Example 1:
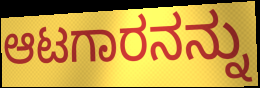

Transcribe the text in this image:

ಆಟಗಾರನನ್ನು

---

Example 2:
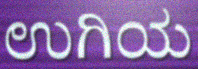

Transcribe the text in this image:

ಉಗಿಯ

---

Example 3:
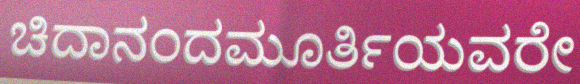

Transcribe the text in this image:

ಚಿದಾನಂದಮೂರ್ತಿಯವರೇ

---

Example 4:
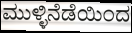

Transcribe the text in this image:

ಮುಳ್ಳಿನೆಡೆಯಿಂದ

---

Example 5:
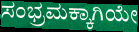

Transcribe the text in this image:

ಸಂಭ್ರಮಕ್ಕಾಗಿಯೇ